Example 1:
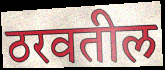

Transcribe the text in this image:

ठरवतील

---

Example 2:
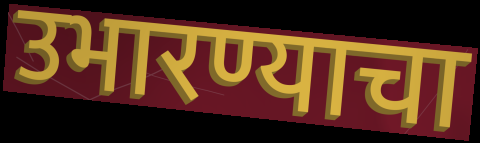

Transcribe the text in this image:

उभारण्याचा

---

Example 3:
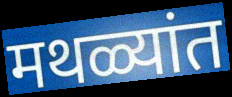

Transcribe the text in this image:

मथळ्यांत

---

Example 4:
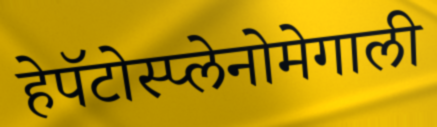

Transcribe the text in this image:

हेपॅटोस्प्लेनोमेगाली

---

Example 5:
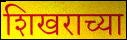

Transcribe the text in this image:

शिखराच्या